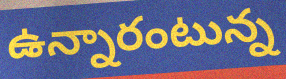
ఉన్నారంటున్న